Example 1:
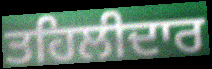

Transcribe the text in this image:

ਤਹਿਲੀਦਾਰ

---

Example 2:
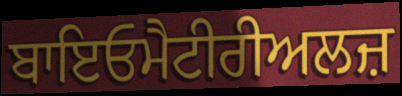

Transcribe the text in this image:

ਬਾਇਓਮੈਟੀਰੀਅਲਜ਼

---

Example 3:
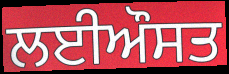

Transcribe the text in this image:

ਲਈਔਸਤ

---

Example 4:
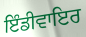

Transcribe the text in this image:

ਇੰਡੀਵਾਇਰ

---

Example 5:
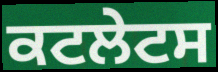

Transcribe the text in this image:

ਕਟਲੇਟਸ